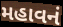
મહાવનં